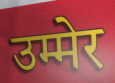
उम्मेर